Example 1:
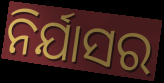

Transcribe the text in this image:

ନିର୍ଯାସର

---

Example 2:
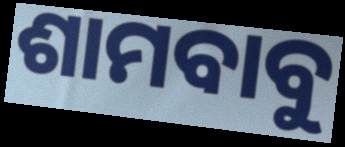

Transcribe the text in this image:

ଶାମବାବୁ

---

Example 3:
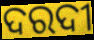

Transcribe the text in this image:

ଦରଦୀ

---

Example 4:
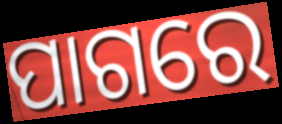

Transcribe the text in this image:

ପାଗରେ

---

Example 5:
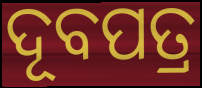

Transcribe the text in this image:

ଦୂବପତ୍ର